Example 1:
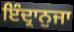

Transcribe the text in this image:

ਇੰਦ੍ਰਾਨੁਜਾ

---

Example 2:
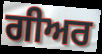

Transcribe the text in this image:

ਗੀਅਰ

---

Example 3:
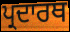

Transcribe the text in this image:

ਪ੍ਰਦਾਰਥ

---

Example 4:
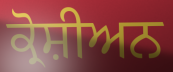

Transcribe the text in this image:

ਕ੍ਰੋਸ਼ੀਅਨ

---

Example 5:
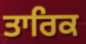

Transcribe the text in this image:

ਤਾਰਿਕ